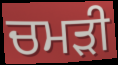
ਚਮਡ਼ੀ